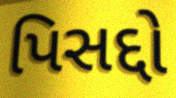
પિસદ્દો